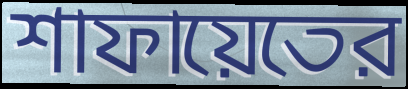
শাফায়েতের